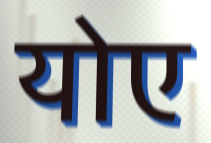
योए